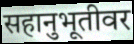
सहानुभूतीवर